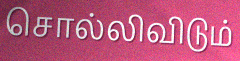
சொல்லிவிடும்